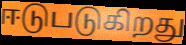
ஈடுபடுகிறது